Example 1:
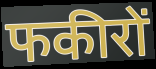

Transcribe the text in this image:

फकीरों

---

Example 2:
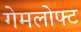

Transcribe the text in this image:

गेमलोफ्ट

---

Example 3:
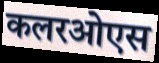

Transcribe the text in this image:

कलरओएस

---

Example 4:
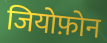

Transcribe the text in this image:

जियोफ़ोन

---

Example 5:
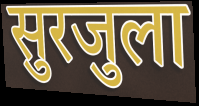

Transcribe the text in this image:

सुरजुला